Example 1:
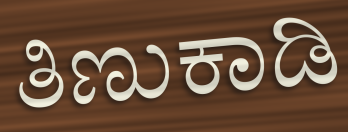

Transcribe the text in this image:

ತಿಣುಕಾಡಿ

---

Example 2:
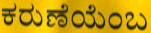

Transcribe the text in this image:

ಕರುಣೆಯೆಂಬ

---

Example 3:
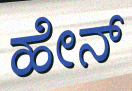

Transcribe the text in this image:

ಹೇನ್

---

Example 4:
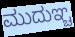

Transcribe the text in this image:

ಮುದುಞ್ಚ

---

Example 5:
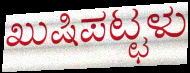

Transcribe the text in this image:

ಖುಷಿಪಟ್ಟಳು